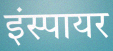
इंस्पायर